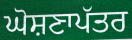
ਘੋਸ਼ਣਾਪੱਤਰ